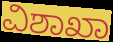
ವಿಶಾಖಾ